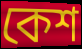
কেশ